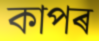
কাপৰ